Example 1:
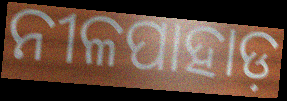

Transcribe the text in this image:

ନୀଳପାହାଡ଼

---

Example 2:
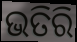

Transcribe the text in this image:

ଭତିରି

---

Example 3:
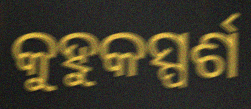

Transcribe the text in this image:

କୁହୁକସ୍ପର୍ଶ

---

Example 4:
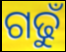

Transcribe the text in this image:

ଗଢୁଁ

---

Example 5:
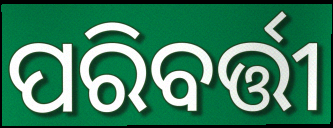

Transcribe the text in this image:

ପରିବର୍ତ୍ତୀ